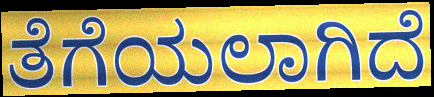
ತೆಗೆಯಲಾಗಿದೆ